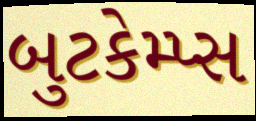
બુટકેમ્પ્સ